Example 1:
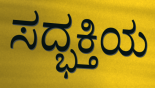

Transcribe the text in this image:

ಸದ್ಭಕ್ತಿಯ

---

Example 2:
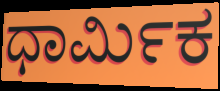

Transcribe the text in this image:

ಧಾರ್ಮಿಕ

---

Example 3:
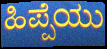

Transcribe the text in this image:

ಹಿಪ್ಪೆಯು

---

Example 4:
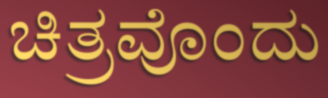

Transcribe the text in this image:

ಚಿತ್ರವೊಂದು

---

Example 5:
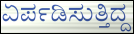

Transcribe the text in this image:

ಏರ್ಪಡಿಸುತ್ತಿದ್ದ